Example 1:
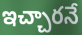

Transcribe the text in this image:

ఇచ్చారనే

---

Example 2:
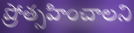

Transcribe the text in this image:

ప్రోత్సహించాలని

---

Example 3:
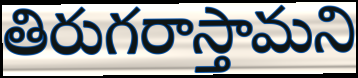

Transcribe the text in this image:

తిరుగరాస్తామని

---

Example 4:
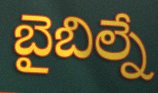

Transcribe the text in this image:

బైబిల్నే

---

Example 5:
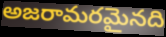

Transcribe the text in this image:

అజరామరమైనది